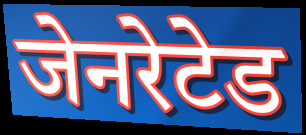
जेनरेटेड